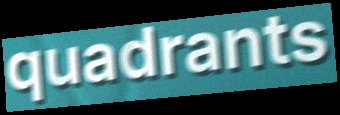
quadrants